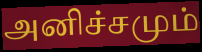
அனிச்சமும்